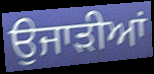
ਉਜਾੜੀਆਂ